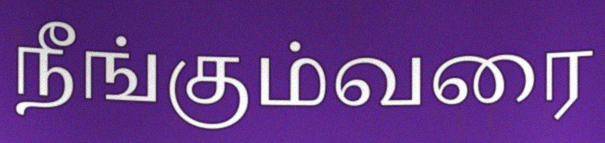
நீங்கும்வரை